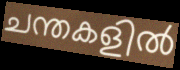
ചന്തകളിൽ